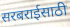
सरबराईसाठी